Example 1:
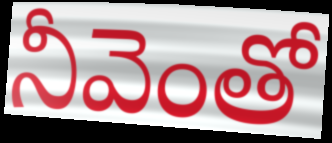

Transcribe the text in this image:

నీవెంతో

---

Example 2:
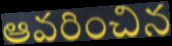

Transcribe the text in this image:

ఆవరించిన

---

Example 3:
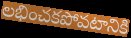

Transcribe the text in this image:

లభించకపోవటానికి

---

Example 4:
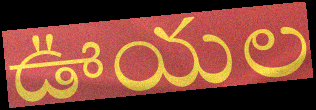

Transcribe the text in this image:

ఊయల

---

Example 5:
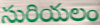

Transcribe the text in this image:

సురియలం